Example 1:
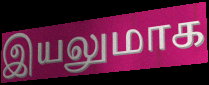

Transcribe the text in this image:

இயலுமாக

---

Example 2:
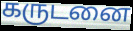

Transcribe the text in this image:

கருடனை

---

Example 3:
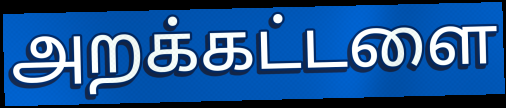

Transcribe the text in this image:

அறக்கட்டளை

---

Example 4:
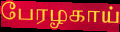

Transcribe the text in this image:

பேரழகாய்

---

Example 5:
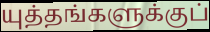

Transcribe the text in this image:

யுத்தங்களுக்குப்